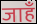
जाहँ